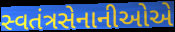
સ્વતંત્રસેનાનીઓએ